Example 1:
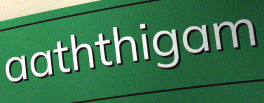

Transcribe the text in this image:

aaththigam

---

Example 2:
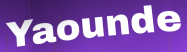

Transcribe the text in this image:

Yaounde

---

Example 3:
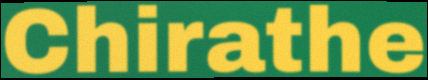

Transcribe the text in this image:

Chirathe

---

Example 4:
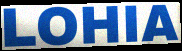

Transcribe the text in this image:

LOHIA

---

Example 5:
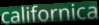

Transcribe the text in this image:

californica